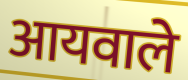
आयवाले